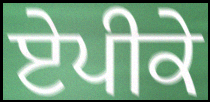
ਏਪੀਕੇ